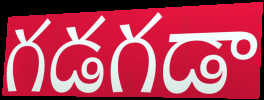
గడగడా